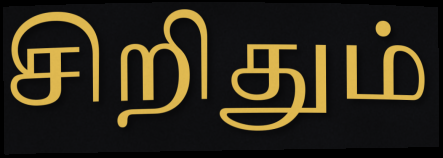
சிறிதும்